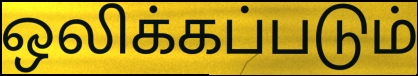
ஒலிக்கப்படும்